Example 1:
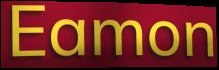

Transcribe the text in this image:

Eamon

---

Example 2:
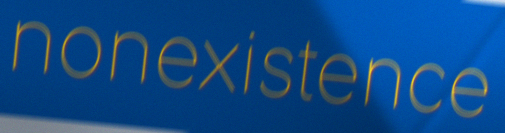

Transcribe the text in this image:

nonexistence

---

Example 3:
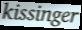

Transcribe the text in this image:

kissinger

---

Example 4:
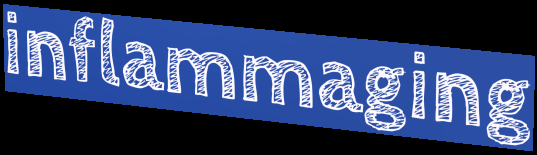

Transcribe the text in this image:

inflammaging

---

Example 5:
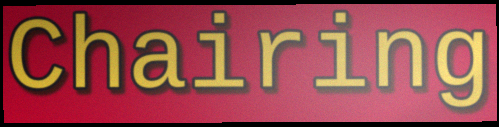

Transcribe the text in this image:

Chairing